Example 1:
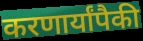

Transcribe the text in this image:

करणार्यांपैकी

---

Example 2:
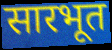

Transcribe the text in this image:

सारभूत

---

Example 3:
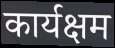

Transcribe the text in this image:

कार्यक्षम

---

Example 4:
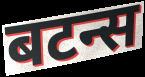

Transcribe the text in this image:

बटन्स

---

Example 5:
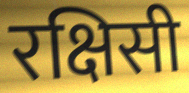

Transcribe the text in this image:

रक्षिसी